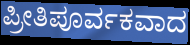
ಪ್ರೀತಿಪೂರ್ವಕವಾದ